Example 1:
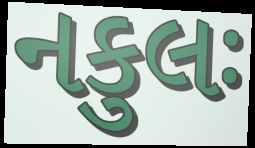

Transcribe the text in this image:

નકુલઃ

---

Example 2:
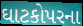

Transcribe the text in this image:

ઘાટકોપરના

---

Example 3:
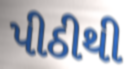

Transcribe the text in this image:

પીઠીથી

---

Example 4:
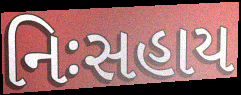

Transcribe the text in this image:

નિઃસહાય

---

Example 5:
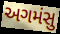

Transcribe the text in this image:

અગમંસુ